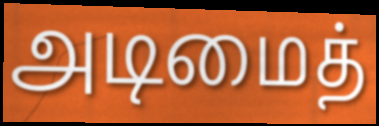
அடிமைத்